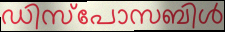
ഡിസ്പോസബിൾ